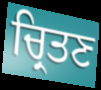
ਚ੍ਰਿਤਣ